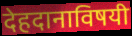
देहदानाविषयी